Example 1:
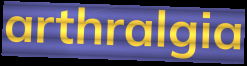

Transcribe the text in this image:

arthralgia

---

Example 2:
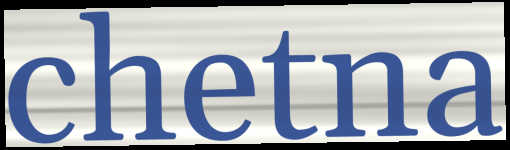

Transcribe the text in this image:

chetna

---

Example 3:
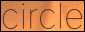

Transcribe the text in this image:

circle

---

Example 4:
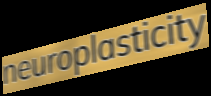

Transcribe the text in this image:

neuroplasticity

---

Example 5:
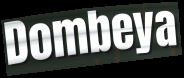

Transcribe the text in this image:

Dombeya